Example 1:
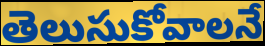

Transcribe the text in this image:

తెలుసుకోవాలనే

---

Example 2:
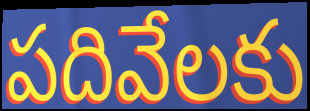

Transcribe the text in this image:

పదివేలకు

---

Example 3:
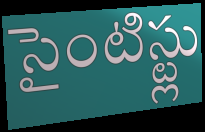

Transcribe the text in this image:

సైంటిస్ట్లు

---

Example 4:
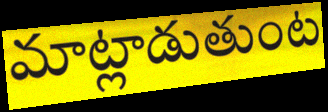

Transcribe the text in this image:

మాట్లాడుతుంట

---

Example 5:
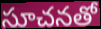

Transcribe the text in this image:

సూచనతో